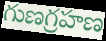
గుణగ్రహణ